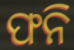
ଫନି